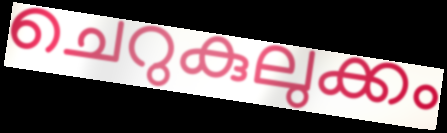
ചെറുകുലുക്കം